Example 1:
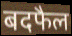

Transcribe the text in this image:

बदफैल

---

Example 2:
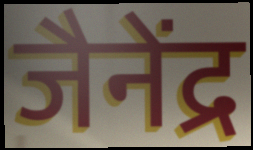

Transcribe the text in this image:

जैनेंद्र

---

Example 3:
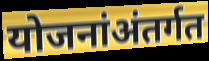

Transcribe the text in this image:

योजनांअंतर्गत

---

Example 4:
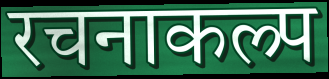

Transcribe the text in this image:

रचनाकल्प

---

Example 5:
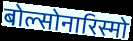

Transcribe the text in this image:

बोल्सोनारिस्मो